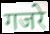
गजरे